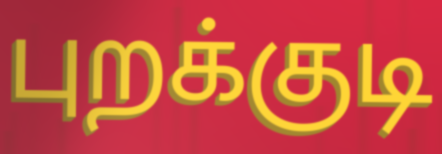
புறக்குடி